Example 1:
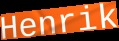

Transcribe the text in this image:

Henrik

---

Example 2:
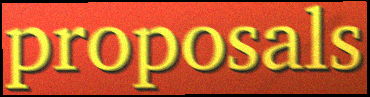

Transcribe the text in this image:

proposals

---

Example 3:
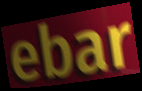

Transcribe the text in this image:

ebar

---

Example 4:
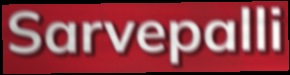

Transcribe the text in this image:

Sarvepalli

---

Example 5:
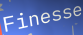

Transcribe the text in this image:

Finesse